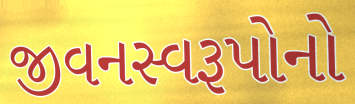
જીવનસ્વરૂપોનો